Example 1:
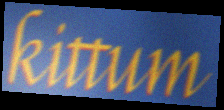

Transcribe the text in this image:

kittum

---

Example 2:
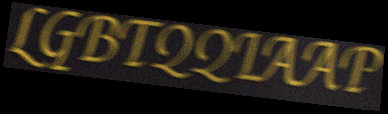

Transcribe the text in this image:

LGBTQQIAAP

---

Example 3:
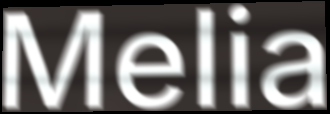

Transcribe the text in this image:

Melia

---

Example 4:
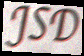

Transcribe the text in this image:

JSD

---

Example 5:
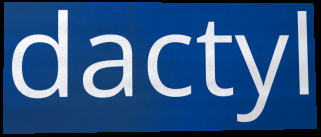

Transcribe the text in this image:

dactyl